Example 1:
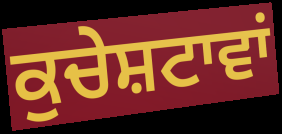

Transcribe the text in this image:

ਕੁਚੇਸ਼ਟਾਵਾਂ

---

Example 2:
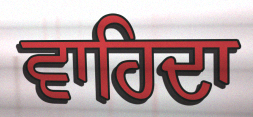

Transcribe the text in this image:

ਵਾਹਿਦਾ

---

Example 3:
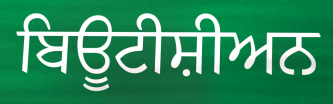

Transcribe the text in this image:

ਬਿਊਟੀਸ਼ੀਅਨ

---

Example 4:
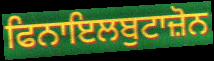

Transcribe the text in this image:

ਫਿਨਾਇਲਬੁਟਾਜ਼ੋਨ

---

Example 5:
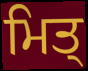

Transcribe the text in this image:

ਮਿਤ੍